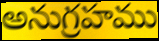
అనుగ్రహము